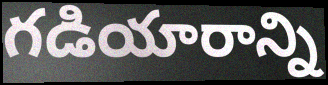
గడియారాన్ని